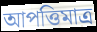
আপত্তিমাত্র